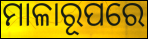
ମାଳାରୂପରେ